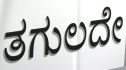
ತಗುಲದೇ